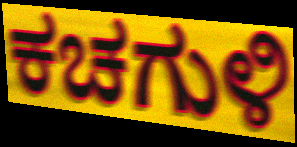
ಕಚಗುಳಿ